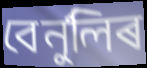
বেৰ্নুলিৰ